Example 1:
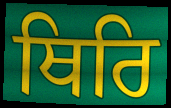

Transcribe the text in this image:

ਥਿਰਿ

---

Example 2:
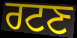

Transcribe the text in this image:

ਰਟਣ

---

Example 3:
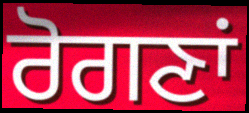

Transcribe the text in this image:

ਰੋਗਣਾਂ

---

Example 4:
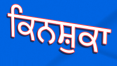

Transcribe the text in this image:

ਕਿਨਸ਼ੁਕਾ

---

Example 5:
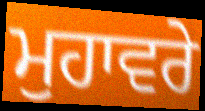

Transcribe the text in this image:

ਮੁਹਾਵਰੇ